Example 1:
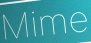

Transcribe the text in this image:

Mime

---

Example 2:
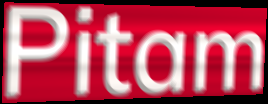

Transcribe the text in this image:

Pitam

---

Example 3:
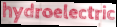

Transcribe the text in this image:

hydroelectric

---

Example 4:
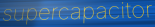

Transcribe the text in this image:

supercapacitor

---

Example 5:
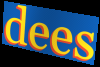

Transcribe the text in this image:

dees